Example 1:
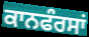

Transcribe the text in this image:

ਕਾਨਫੰਰਸਾਂ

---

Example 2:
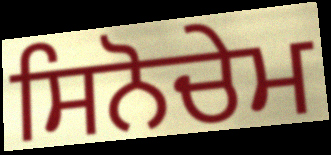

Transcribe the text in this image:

ਸਿਨੋਚੇਮ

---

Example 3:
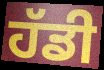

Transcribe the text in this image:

ਹੱਡੀ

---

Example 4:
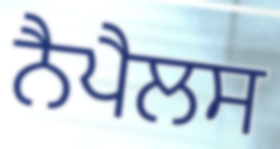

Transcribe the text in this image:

ਨੈਪੈਲਸ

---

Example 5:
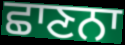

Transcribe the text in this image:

ਛਾਣਨਾ